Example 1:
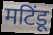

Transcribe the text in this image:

मटिंडू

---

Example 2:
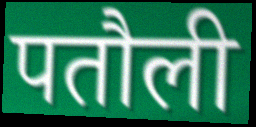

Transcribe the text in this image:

पतौली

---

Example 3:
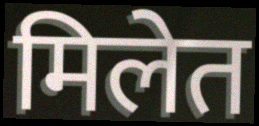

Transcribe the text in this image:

मिलेत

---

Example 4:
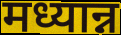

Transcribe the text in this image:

मध्यान्न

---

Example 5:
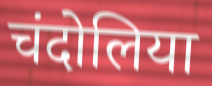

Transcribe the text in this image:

चंदोलिया